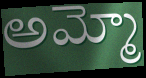
అమ్మో